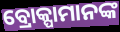
ବ୍ରୋକ୍ପାମାନଙ୍କ